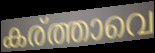
കര്ത്താവെ